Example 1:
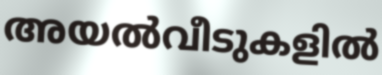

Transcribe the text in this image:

അയൽവീടുകളിൽ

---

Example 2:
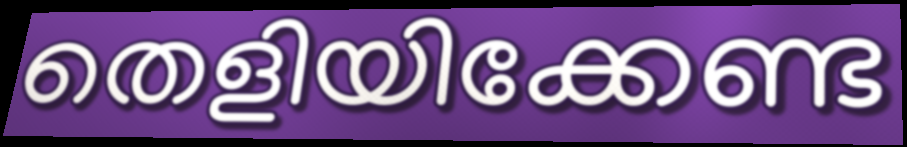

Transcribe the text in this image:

തെളിയിക്കേണ്ട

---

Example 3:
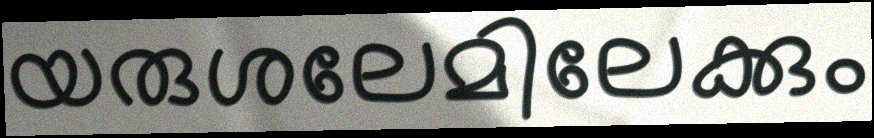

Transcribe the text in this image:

യരുശലേമിലേക്കും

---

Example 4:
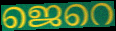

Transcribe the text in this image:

ജെറെ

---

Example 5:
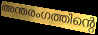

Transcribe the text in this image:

അന്തരംഗത്തിന്റെ